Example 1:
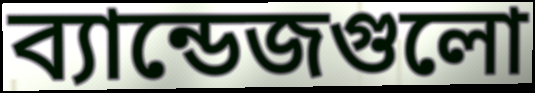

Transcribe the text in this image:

ব্যান্ডেজগুলো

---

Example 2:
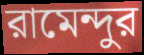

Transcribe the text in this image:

রামেন্দুর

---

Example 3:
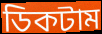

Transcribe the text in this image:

ডিকটাম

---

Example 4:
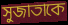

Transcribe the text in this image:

সুজাতাকে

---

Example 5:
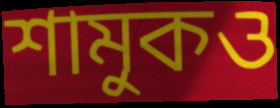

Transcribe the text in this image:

শামুকও